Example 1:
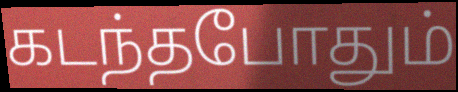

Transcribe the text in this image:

கடந்தபோதும்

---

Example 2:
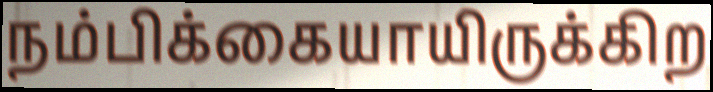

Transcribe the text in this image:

நம்பிக்கையாயிருக்கிற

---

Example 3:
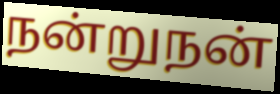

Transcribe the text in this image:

நன்றுநன்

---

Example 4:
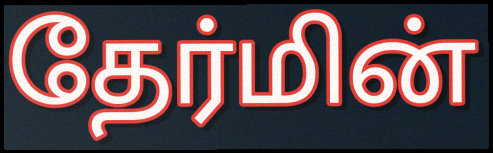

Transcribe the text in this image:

தேர்மின்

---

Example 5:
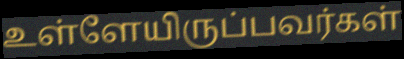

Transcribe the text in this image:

உள்ளேயிருப்பவர்கள்